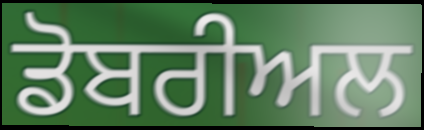
ਡੋਬਰੀਅਲ